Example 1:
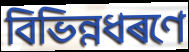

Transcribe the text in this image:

বিভিন্নধৰণে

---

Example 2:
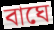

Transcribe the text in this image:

বাঘে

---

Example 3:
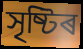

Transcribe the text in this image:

সৃষ্টিৰ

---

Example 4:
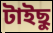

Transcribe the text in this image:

টাইছু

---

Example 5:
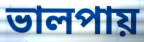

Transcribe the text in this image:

ভালপায়